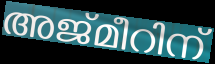
അജ്മീറിന്